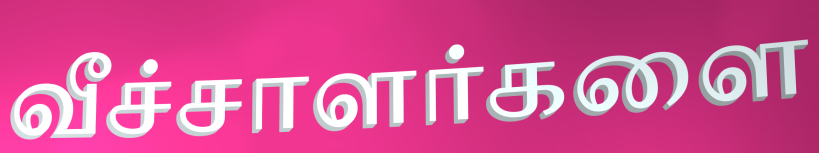
வீச்சாளர்களை